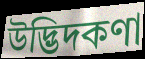
উদ্ভিদকণা